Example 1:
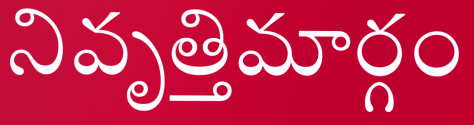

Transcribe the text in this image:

నివృత్తిమార్గం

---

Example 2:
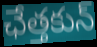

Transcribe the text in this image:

ఛేత్తకున్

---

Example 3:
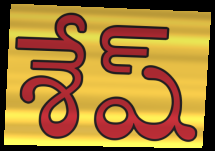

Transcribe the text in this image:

శేష్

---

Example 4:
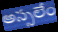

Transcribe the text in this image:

అస్సలేం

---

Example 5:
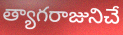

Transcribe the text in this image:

త్యాగరాజునిచే